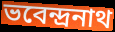
ভবেন্দ্ৰনাথ